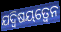
ଯଦ୍ଵିଷୟତ୍ଵେନ